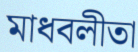
মাধবলীতা